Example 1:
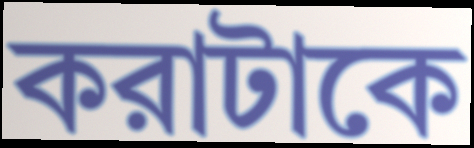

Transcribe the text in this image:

করাটাকে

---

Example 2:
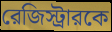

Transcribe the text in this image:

রেজিস্ট্রারকে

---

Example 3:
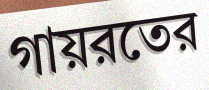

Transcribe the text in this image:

গায়রতের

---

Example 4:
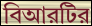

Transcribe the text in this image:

বিআরটির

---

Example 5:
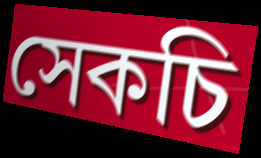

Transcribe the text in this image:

সেকচি